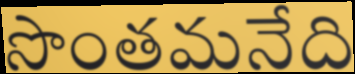
సొంతమనేది